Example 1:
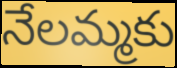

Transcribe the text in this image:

నేలమ్మకు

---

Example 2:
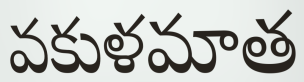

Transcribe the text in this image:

వకుళమాత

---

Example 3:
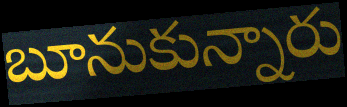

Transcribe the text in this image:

బూనుకున్నారు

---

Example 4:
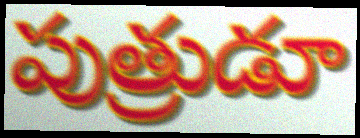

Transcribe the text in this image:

పుత్రుడూ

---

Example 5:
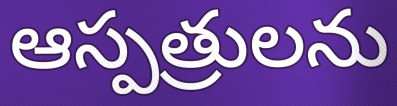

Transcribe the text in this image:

ఆస్పత్రులను